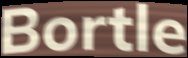
Bortle